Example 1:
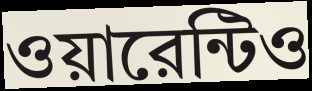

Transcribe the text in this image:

ওয়ারেন্টিও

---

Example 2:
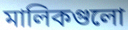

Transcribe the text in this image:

মালিকগুলো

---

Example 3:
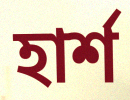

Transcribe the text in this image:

হার্শ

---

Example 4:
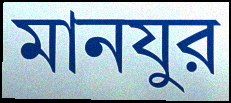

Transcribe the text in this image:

মানযুর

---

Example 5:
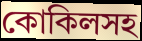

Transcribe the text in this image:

কোকিলসহ